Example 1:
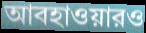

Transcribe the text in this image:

আবহাওয়ারও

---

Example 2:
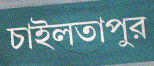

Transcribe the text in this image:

চাইলতাপুর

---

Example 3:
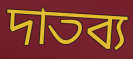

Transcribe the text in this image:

দাতব্য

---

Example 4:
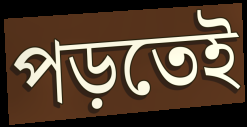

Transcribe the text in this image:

পড়তেই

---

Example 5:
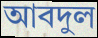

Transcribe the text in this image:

আবদুল